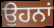
ਉਹਨਾਂ